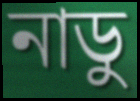
নাডু